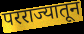
परराज्यातून